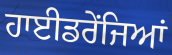
ਹਾਈਡਰੇਂਜਿਆਂ